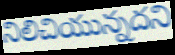
నిలిచియున్నదని